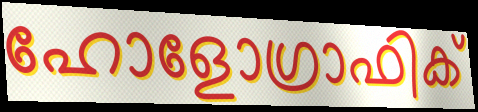
ഹോളോഗ്രാഫിക്